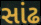
સાંઢ